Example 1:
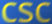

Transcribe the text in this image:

csc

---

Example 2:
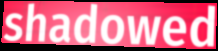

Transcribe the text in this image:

shadowed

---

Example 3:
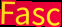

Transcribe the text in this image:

Fasc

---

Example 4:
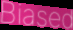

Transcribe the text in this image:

Biased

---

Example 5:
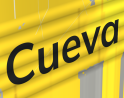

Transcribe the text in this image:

Cueva